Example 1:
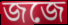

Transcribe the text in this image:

জজে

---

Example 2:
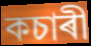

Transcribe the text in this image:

কচাৰী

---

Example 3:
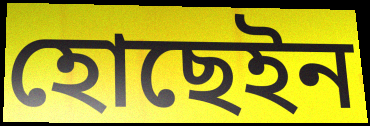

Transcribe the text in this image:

হোছেইন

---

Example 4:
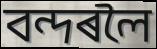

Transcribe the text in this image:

বন্দৰলৈ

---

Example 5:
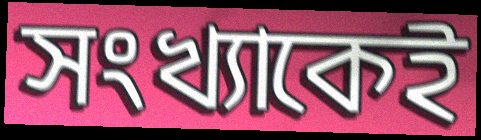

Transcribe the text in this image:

সংখ্যাকেই